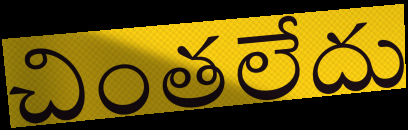
చింతలేదు